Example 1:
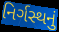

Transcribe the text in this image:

નિર્ગસ્થનું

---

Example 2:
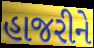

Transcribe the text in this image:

હાજરીને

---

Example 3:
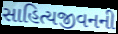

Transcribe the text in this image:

સાહિત્યજીવનની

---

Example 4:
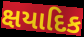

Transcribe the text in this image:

ક્ષયાદિક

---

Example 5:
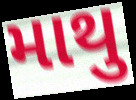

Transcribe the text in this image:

માથુ